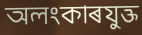
অলংকাৰযুক্ত